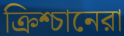
ক্রিশ্চানেরা